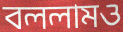
বললামও